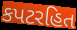
કપટરહિત